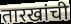
तारखांची